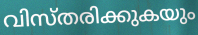
വിസ്തരിക്കുകയും